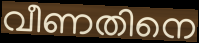
വീണതിനെ